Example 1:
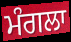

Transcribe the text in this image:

ਮੰਗਲਾ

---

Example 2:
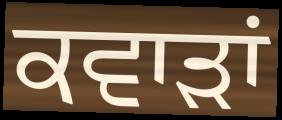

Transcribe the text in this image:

ਕਵਾੜਾਂ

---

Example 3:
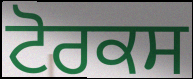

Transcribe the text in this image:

ਟੋਰਕਸ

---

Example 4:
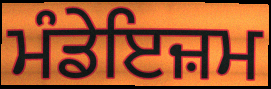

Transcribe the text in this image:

ਮੰਡੇਇਜ਼ਮ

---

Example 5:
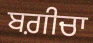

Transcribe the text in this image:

ਬਗ਼ੀਚਾ